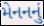
મેનનનું